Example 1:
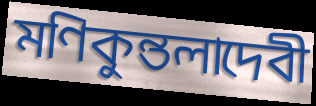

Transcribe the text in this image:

মণিকুন্তলাদেবী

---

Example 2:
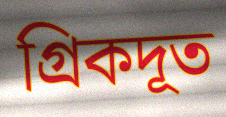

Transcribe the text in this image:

গ্রিকদূত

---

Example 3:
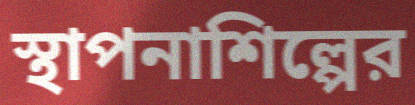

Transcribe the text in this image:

স্থাপনাশিল্পের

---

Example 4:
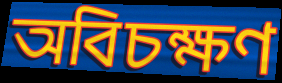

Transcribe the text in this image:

অবিচক্ষণ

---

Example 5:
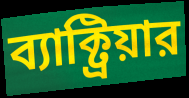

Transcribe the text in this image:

ব্যাক্ট্রিয়ার